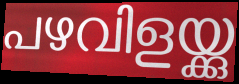
പഴവിളയ്ക്കു